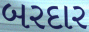
બરદાર